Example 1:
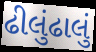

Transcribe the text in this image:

ઢીલુંઢાલું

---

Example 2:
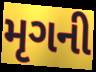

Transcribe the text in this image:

મૃગની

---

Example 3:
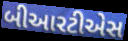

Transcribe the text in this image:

બીઆરટીએસ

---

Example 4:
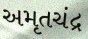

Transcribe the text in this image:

અમૃતચંદ્ર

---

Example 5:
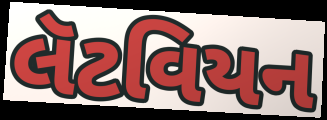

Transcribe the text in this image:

લૅટવિયન